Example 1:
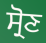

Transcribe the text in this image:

ਸ੍ਰੋਣ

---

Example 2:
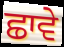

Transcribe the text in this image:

ਛਾਵੇ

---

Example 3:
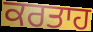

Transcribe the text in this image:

ਕਰਤਾਹ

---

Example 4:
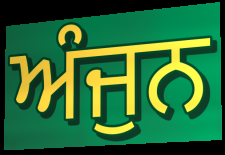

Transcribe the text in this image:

ਅੰਜੁਨ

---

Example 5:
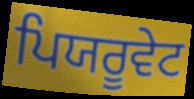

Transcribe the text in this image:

ਪਿਯਰੂਵੇਟ